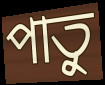
পাতু